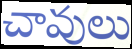
చావులు